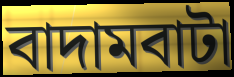
বাদামবাটা